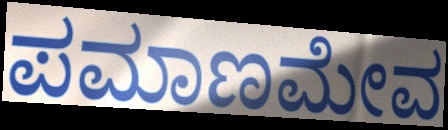
ಪಮಾಣಮೇವ